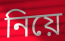
নিয়ে